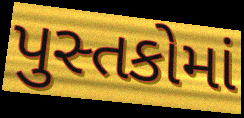
પુસ્તકોમાં